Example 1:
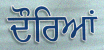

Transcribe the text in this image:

ਦੌਰਿਆਂ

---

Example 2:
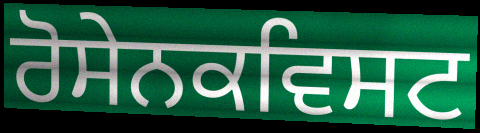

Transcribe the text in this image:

ਰੋਸੇਨਕਵਿਸਟ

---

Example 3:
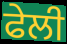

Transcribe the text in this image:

ਫੇਲੀ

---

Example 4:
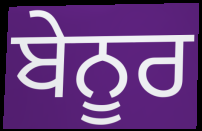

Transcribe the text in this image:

ਬੇਨੂਰ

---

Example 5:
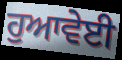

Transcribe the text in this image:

ਹੁਆਵੇਈ